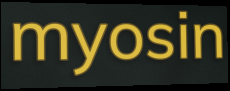
myosin